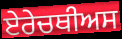
ਏਰੇਚਥੀਅਸ